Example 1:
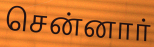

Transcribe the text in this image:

சென்னார்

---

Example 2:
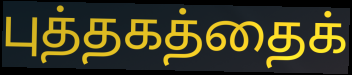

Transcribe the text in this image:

புத்தகத்தைக்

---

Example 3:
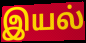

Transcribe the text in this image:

இயல்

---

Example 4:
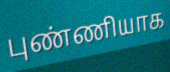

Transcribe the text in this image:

புண்ணியாக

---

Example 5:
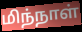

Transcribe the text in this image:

மிந்நாள்